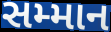
સમ્માન